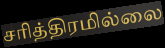
சரித்திரமில்லை